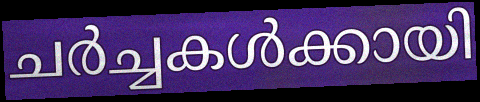
ചർച്ചകൾക്കായി